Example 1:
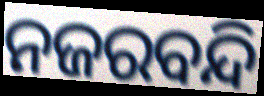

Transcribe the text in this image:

ନଜରବନ୍ଦି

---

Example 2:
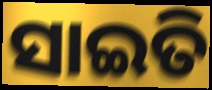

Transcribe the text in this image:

ସାଇତି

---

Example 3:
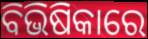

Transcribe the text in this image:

ବିଭିଷିକାରେ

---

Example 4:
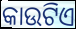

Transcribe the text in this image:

କାଉଟିଏ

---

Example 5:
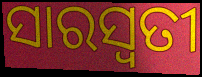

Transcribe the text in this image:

ସାରସ୍ୱତୀ